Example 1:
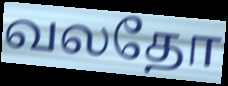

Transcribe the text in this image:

வலதோ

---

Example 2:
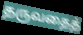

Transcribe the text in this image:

தருவதைத்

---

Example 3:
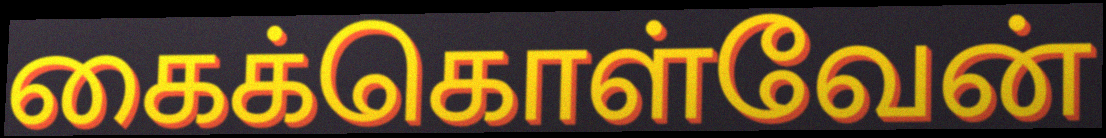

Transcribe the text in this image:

கைக்கொள்வேன்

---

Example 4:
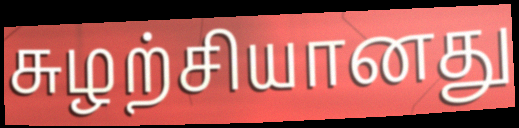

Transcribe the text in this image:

சுழற்சியானது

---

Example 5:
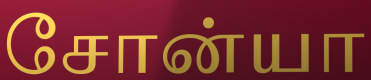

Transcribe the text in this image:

சோன்யா